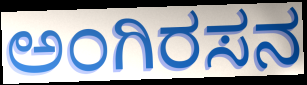
ಅಂಗಿರಸನ